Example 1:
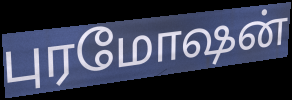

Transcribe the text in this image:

புரமோஷன்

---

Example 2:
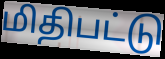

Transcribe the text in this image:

மிதிபட்டு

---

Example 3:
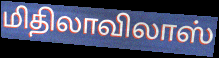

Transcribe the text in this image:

மிதிலாவிலாஸ்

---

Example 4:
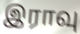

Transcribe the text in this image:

இராவு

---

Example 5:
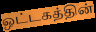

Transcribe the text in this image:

ஒட்டகத்தின்